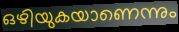
ഒഴിയുകയാണെന്നും